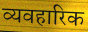
व्यवहारिक